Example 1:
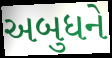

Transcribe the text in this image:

અબુધને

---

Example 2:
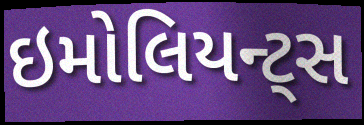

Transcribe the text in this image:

ઇમોલિયન્ટ્સ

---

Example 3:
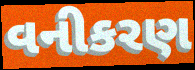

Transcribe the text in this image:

વનીકરણ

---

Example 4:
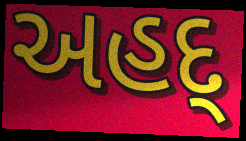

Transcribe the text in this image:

અહદ્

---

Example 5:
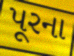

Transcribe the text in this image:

પૂરના